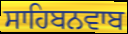
ਸਾਹਿਬਨਵਾਬ